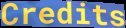
Credits